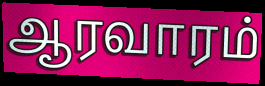
ஆரவாரம்